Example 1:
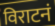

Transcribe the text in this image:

विराटनं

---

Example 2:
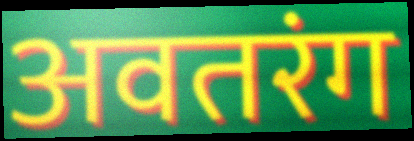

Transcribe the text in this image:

अवतरंग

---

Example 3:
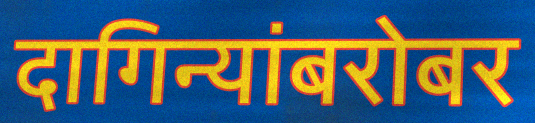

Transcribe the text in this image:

दागिन्यांबरोबर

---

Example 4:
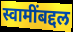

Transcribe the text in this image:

स्वामींबद्दल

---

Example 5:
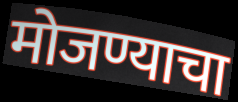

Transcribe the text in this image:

मोजण्याचा